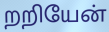
றறியேன்